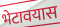
भेटावयास